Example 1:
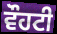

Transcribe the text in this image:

ਵੌਹਟੀ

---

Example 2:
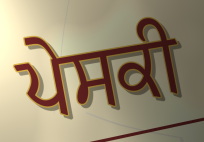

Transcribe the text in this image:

ਪੇਸਕੀ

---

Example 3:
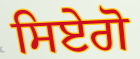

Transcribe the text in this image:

ਸਿਏਗੋ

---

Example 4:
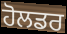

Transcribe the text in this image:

ਹੋਲਡਰ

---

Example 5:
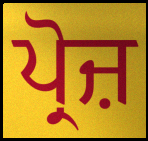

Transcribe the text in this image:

ਪ੍ਰੋਜ਼